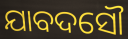
ଯାବଦସୌ